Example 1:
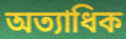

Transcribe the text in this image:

অত্যাধিক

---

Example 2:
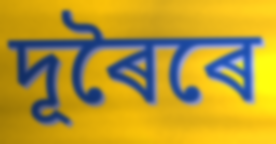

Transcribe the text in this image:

দূৰৈৰে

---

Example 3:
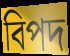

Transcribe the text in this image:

বিপদ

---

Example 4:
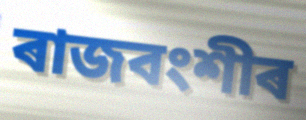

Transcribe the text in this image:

ৰাজবংশীৰ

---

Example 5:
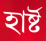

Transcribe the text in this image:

হাৰ্ষ্ট